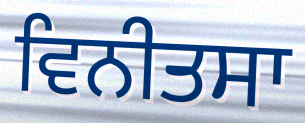
ਵਿਨੀਤਸਾ